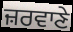
ਜ਼ਰਵਾਣੇ